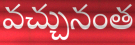
వచ్చునంత